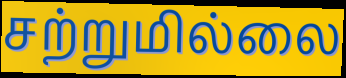
சற்றுமில்லை